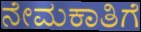
ನೇಮಕಾತಿಗೆ